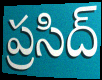
ప్రసిద్